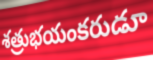
శత్రుభయంకరుడూ